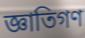
জ্ঞাতিগণ